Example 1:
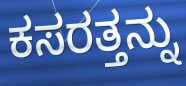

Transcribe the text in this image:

ಕಸರತ್ತನ್ನು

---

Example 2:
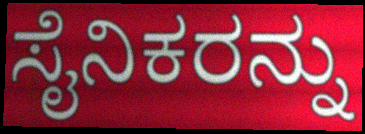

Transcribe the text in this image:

ಸೈನಿಕರನ್ನು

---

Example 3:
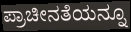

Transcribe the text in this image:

ಪ್ರಾಚೀನತೆಯನ್ನೂ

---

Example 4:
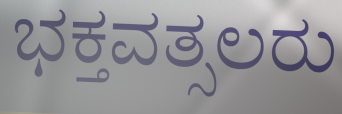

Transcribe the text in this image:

ಭಕ್ತವತ್ಸಲರು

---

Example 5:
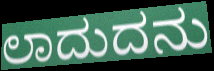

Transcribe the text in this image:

ಲಾದುದನು